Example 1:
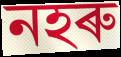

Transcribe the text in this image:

নহৰু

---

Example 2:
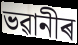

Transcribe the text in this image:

ভৱানীৰ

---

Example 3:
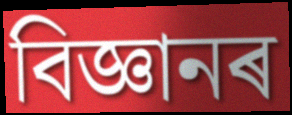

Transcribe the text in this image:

বিজ্ঞানৰ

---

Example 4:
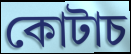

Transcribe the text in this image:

কোটাচ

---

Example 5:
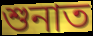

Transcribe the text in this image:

শুনাত